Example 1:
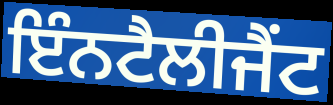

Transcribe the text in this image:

ਇੰਨਟੈਲੀਜੈਂਟ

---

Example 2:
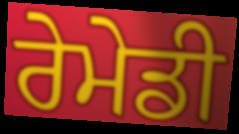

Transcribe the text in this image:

ਰੇਮੇਡੀ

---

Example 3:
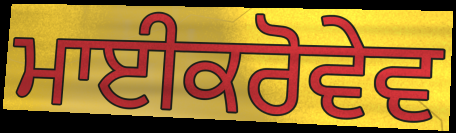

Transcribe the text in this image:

ਮਾਈਕਰੋਵੇਵ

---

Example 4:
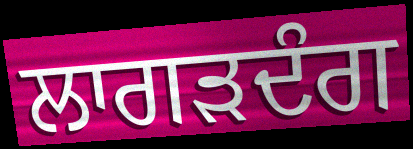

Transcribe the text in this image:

ਲਾਗੜਦੰਗ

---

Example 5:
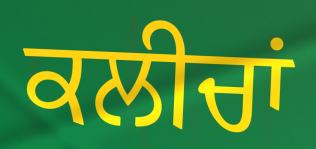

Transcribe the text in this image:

ਕਲੀਚਾਂ